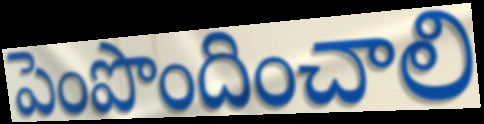
పెంపొందించాలి